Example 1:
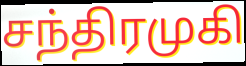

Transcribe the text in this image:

சந்திரமுகி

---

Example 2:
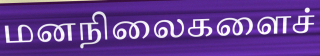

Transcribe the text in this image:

மனநிலைகளைச்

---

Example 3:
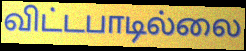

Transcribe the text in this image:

விட்டபாடில்லை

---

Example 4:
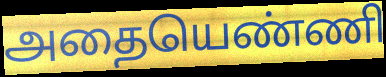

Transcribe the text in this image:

அதையெண்ணி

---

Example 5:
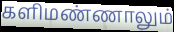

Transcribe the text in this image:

களிமண்ணாலும்